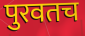
पुरवतच